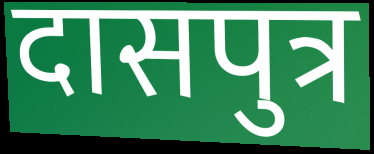
दासपुत्र